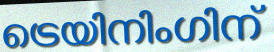
ട്രെയിനിംഗിന്